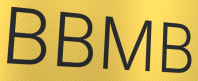
BBMB